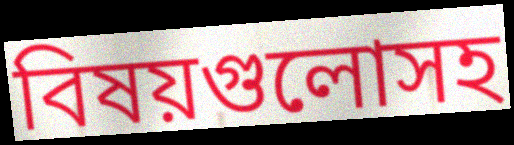
বিষয়গুলোসহ